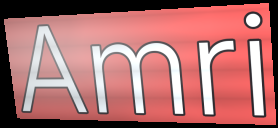
Amri